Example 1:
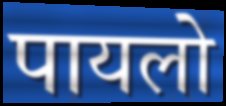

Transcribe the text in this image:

पायलो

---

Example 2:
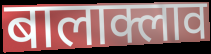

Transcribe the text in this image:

बालाक्लाव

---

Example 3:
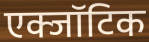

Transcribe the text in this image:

एक्जॉटिक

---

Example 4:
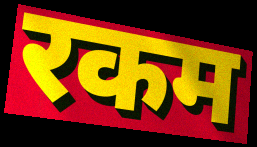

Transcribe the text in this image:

रकम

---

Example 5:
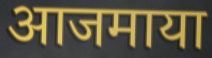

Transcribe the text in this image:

आजमाया